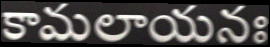
కామలాయనః